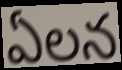
ఏలన